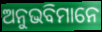
ଅନୁଭବିମାନେ